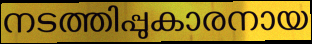
നടത്തിപ്പുകാരനായ